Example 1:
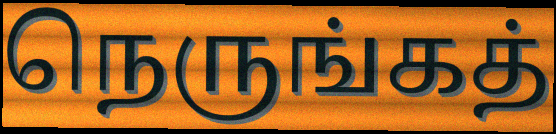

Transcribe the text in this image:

நெருங்கத்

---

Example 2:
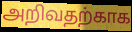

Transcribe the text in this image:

அறிவதற்காக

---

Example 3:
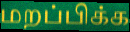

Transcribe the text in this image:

மறப்பிக்க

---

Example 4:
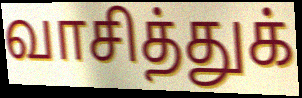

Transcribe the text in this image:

வாசித்துக்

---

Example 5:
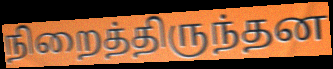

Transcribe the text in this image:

நிறைத்திருந்தன